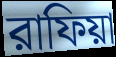
রাফিয়া